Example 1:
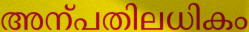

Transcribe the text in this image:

അന്പതിലധികം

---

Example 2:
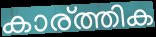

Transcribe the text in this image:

കാര്ത്തിക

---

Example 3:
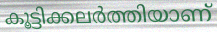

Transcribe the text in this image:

കൂട്ടിക്കലർത്തിയാണ്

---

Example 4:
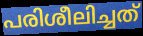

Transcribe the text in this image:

പരിശീലിച്ചത്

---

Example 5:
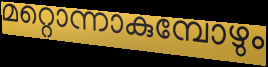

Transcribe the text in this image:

മറ്റൊന്നാകുമ്പോഴും